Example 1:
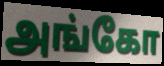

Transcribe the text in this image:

அங்கோ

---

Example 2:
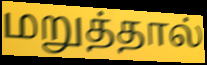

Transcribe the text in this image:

மறுத்தால்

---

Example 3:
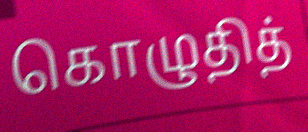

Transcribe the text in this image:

கொழுதித்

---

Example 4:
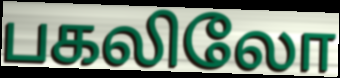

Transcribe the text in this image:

பகலிலோ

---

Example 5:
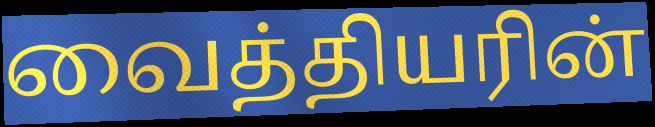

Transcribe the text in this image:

வைத்தியரின்